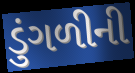
ડુંગળીની